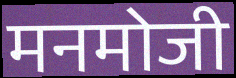
मनमोजी